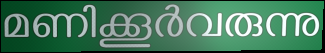
മണിക്കൂർവരുന്നു